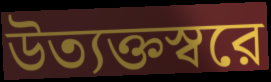
উত্যক্তস্বরে